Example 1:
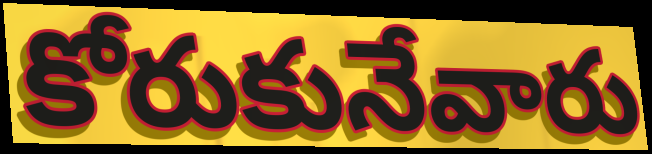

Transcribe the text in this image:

కోరుకునేవారు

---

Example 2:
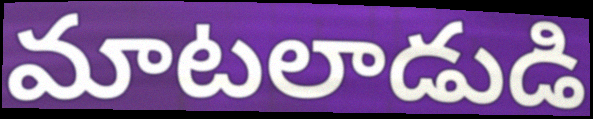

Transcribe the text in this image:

మాటలాడుడి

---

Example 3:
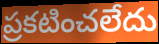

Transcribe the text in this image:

ప్రకటించలేదు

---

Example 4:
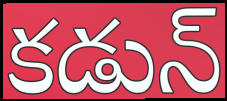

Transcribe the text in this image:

కడున్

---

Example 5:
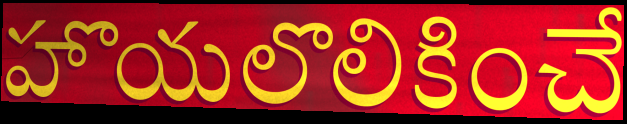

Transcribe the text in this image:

హొయలొలికించే